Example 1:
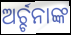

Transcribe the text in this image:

ଅର୍ଚ୍ଚନାଙ୍କ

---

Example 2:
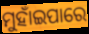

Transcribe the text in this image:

ମୁହାଁଇପାରେ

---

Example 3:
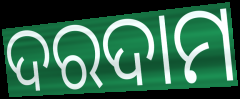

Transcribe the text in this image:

ଦରଦାମ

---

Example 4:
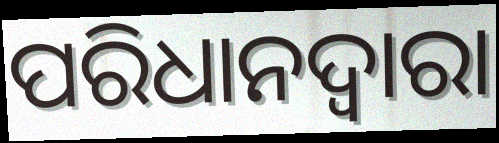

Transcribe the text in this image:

ପରିଧାନଦ୍ୱାରା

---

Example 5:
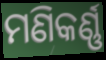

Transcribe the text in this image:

ମଣିକର୍ଣ୍ଣ